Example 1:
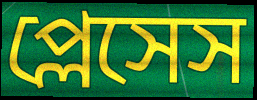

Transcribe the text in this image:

প্লেসেস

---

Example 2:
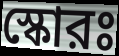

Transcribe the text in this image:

স্কোরঃ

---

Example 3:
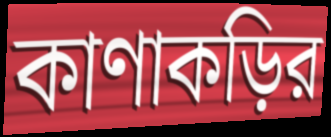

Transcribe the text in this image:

কাণাকড়ির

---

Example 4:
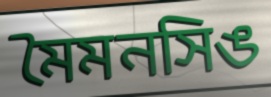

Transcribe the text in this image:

মৈমনসিঙ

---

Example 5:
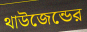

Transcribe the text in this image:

থাউজেন্ডের